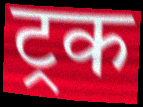
ट्रक